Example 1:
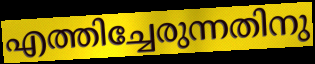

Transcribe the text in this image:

എത്തിച്ചേരുന്നതിനു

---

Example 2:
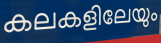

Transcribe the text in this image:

കലകളിലേയും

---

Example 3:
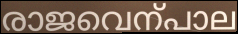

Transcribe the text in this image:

രാജവെന്പാല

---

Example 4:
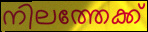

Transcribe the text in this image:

നിലത്തേക്ക്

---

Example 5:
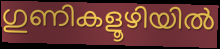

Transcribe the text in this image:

ഗുണികളൂഴിയിൽ